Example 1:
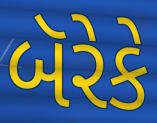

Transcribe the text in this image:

બૅરેકે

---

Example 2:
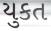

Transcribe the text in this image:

યુકત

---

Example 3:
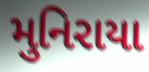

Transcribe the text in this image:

મુનિરાયા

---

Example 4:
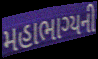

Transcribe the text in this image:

મહાભાગ્યની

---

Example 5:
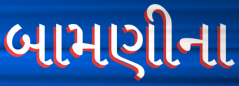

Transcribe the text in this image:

બામણીના